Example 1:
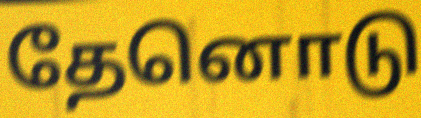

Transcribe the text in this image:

தேனொடு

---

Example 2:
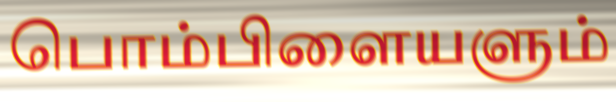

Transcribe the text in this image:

பொம்பிளையளும்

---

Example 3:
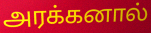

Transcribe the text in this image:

அரக்கனால்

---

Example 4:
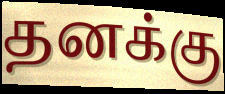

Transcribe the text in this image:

தனக்கு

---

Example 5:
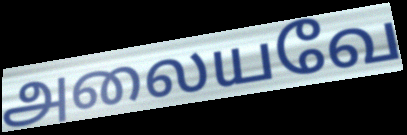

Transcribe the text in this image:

அலையவே